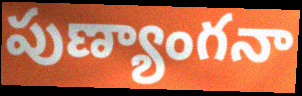
పుణ్యాంగనా